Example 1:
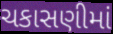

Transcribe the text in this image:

ચકાસણીમાં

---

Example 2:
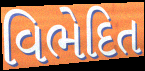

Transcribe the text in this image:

વિભેદિત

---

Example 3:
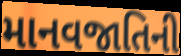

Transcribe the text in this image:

માનવજાતિની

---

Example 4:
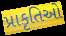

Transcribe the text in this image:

પ્રાકૃતિઓ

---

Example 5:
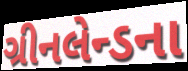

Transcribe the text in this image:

ગ્રીનલેન્ડના